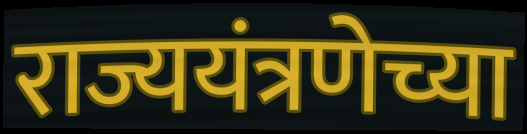
राज्ययंत्रणेच्या